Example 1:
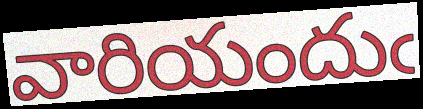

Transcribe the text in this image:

వారియందుఁ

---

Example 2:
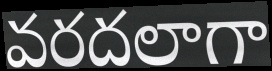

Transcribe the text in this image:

వరదలాగా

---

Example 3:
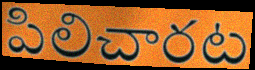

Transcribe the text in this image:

పిలిచారట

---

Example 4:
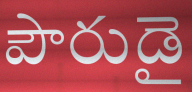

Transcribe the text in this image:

పౌరుడై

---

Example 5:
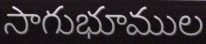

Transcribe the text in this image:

సాగుభూముల